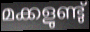
മക്കളുണ്ടു്